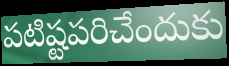
పటిష్టపరిచేందుకు